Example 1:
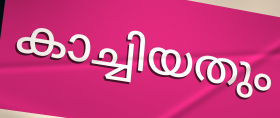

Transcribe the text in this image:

കാച്ചിയതും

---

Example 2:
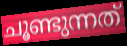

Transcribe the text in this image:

ചൂണ്ടുന്നത്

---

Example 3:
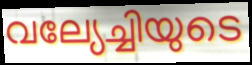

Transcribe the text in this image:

വല്യേച്ചിയുടെ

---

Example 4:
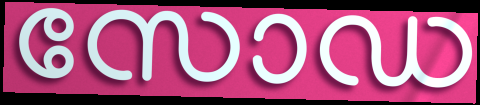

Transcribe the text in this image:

സോഡ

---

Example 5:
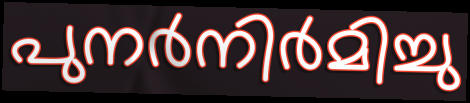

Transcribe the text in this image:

പുനർനിർമിച്ചു